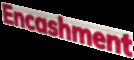
Encashment